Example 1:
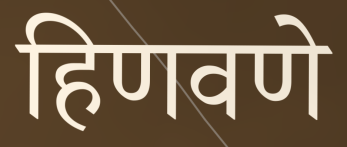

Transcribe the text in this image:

हिणवणे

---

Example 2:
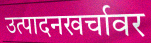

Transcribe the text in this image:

उत्पादनखर्चावर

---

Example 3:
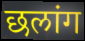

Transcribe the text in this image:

छलांग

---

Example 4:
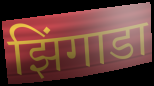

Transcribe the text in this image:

झिंगाडा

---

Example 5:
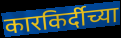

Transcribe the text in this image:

कारकिर्दीच्या